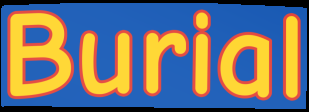
Burial